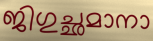
ജിഗുച്ഛമാനാ